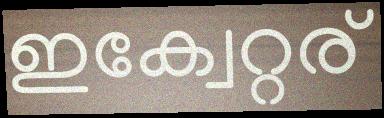
ഇക്വേറ്റര്